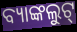
ବ୍ୟାଙ୍କଲୁଟ୍